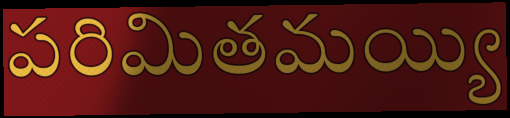
పరిమితమయ్యి